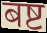
बष्ट